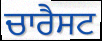
ਚਾਰੈਸਟ